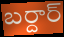
బర్దార్